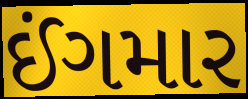
ઈંગમાર